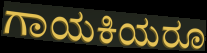
ಗಾಯಕಿಯರೂ